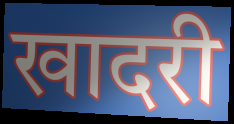
खादरी